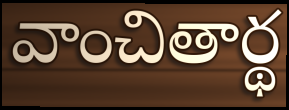
వాంచితార్థ